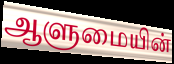
ஆளுமையின்